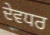
ਦੇਵਧਰ